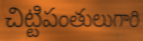
చిట్టిపంతులుగారి